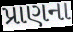
પ્રાણના